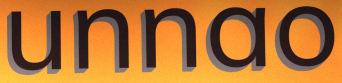
unnao